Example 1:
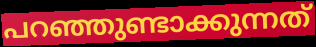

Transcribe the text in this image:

പറഞ്ഞുണ്ടാക്കുന്നത്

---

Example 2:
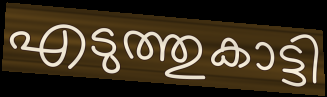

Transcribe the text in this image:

എടുത്തുകാട്ടി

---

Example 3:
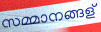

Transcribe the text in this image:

സമ്മാനങ്ങള്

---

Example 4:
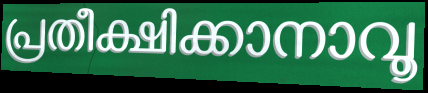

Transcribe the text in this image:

പ്രതീക്ഷിക്കാനാവൂ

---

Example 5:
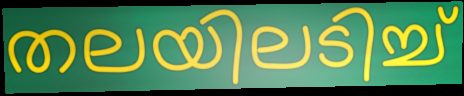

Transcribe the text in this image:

തലയിലടിച്ച്